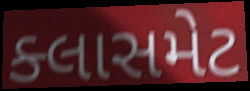
ક્લાસમેટ